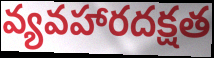
వ్యవహారదక్షత